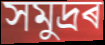
সমুদ্ৰৰ